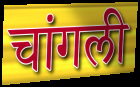
चांगली